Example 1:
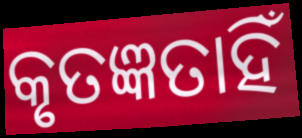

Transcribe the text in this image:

କୃତଜ୍ଞତାହିଁ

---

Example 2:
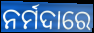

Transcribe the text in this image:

ନର୍ମଦାରେ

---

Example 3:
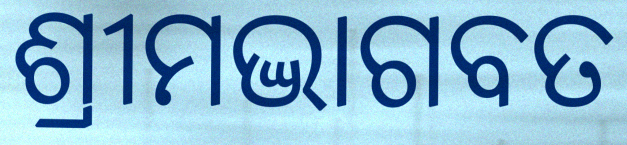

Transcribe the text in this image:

ଶ୍ରୀମଦ୍ଭାଗବତ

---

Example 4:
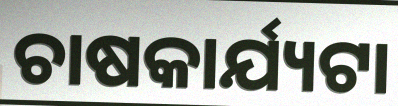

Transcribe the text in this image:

ଚାଷକାର୍ଯ୍ୟଟା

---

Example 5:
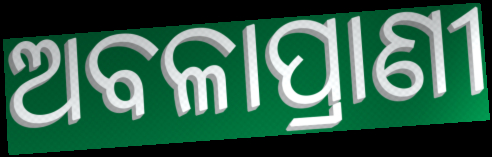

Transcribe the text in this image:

ଅବଳାପ୍ରାଣୀ